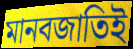
মানবজাতিই